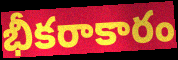
భీకరాకారం